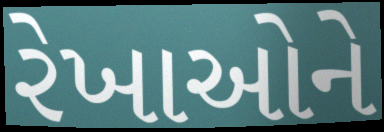
રેખાઓને